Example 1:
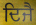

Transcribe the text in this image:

ਦਿਜੈ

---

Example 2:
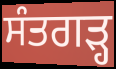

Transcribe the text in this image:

ਸੰਤਗੜ੍ਹ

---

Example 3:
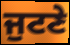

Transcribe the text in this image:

ਜੁਟਣੇ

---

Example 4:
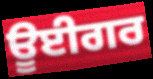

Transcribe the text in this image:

ਊਈਗਰ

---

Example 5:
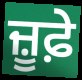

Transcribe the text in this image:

ਜ਼ੂਫ਼ੇ